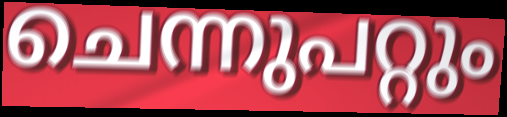
ചെന്നുപറ്റും